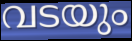
വടയും